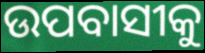
ଉପବାସୀକୁ